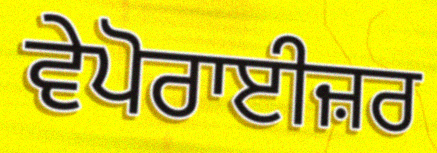
ਵੇਪੋਰਾਈਜ਼ਰ